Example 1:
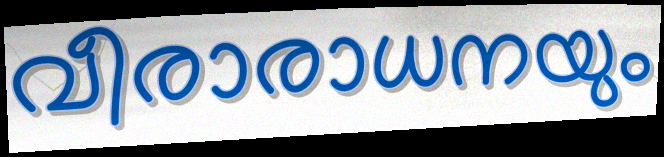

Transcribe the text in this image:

വീരാരാധനയും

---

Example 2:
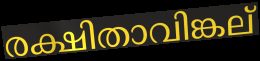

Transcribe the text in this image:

രക്ഷിതാവിങ്കല്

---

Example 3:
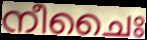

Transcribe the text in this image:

നീചൈഃ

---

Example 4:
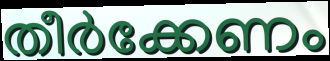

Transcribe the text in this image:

തീർക്കേണം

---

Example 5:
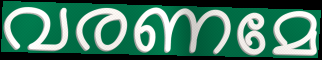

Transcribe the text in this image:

വരണമേ